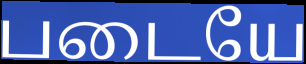
படையே